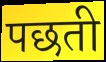
पछती